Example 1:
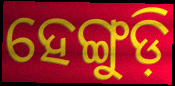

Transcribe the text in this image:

ହେଙ୍ଗୁଡ଼ି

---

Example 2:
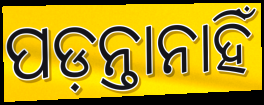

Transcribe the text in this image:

ପଡ଼ନ୍ତାନାହିଁ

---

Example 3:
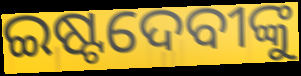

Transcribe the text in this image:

ଇଷ୍ଟଦେବୀଙ୍କୁ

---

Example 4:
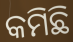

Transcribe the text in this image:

କମିଛି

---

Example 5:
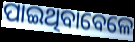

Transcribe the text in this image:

ପାଇଥିବାବେଳେ